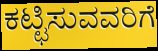
ಕಟ್ಟಿಸುವವರಿಗೆ